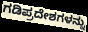
ಗಡಿಪ್ರದೇಶಗಳನ್ನು